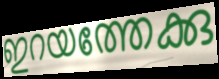
ഇറയത്തേക്കു